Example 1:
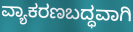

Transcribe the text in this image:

ವ್ಯಾಕರಣಬದ್ಧವಾಗಿ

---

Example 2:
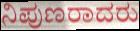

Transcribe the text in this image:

ನಿಪುಣರಾದರು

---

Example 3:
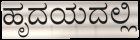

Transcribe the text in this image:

ಹೃದಯದಲ್ಲಿ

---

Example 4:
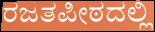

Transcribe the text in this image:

ರಜತಪೀಠದಲ್ಲಿ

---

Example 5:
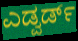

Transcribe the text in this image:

ಎಡ್ವರ್ಡ್